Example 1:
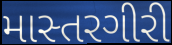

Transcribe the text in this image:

માસ્તરગીરી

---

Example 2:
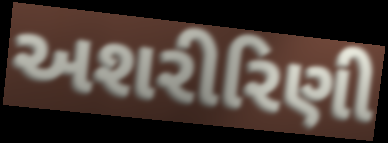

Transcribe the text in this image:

અશરીરિણી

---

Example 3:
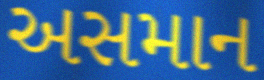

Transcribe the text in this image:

અસમાન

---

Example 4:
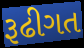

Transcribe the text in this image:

રૂઢીગત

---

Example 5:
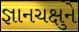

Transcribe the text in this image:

જ્ઞાનચક્ષુને